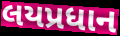
લયપ્રધાન